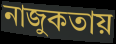
নাজুকতায়